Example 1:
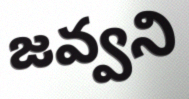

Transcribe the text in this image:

జవ్వని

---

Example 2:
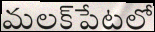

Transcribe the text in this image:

మలక్‌పేటలో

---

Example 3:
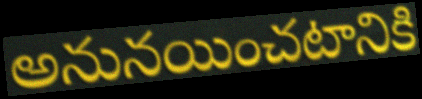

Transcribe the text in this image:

అనునయించటానికి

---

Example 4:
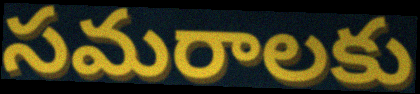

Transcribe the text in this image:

సమరాలకు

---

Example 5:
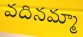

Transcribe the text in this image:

వదినమ్మా